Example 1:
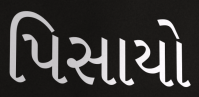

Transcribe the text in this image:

પિસાયો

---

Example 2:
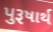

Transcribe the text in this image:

પુરૂષાર્થ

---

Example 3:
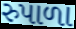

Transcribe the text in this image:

રુપાળા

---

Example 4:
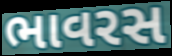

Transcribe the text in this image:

ભાવરસ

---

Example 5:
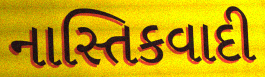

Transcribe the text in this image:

નાસ્તિકવાદી